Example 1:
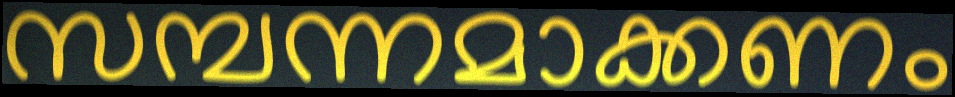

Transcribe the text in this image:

സമ്പന്നമാക്കണം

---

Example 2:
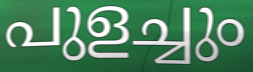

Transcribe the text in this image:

പുളച്ചും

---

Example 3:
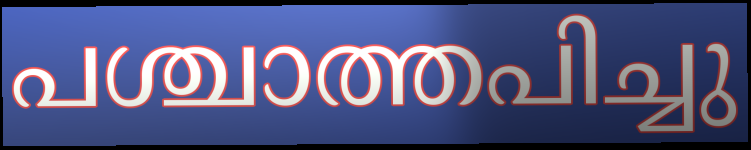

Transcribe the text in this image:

പശ്ചാത്തപിച്ചു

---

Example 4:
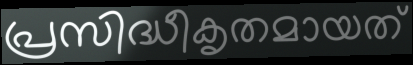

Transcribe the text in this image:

പ്രസിദ്ധീകൃതമായത്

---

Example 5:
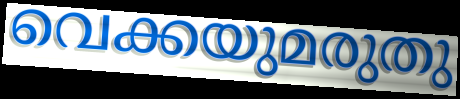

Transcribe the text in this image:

വെക്കയുമരുതു